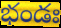
భండః